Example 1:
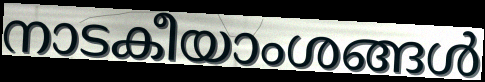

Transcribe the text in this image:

നാടകീയാംശങ്ങൾ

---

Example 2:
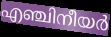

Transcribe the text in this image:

എഞ്ചിനീയർ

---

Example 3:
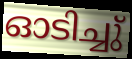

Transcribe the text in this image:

ഓടിച്ചു്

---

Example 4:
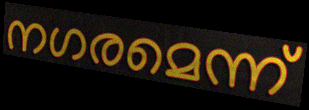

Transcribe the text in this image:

നഗരമെന്ന്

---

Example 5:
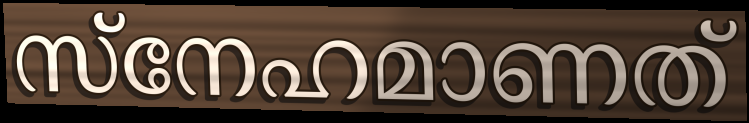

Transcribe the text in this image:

സ്നേഹമാണത്